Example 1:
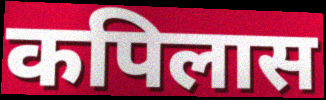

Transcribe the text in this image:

कपिलास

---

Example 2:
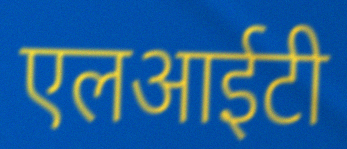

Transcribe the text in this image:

एलआईटी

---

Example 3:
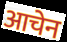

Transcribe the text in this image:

आचेन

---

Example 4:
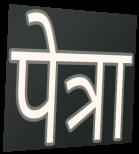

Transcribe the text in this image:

पेत्रा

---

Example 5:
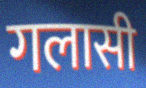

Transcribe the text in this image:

गलासी